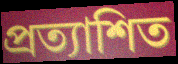
প্রত্যাশিত